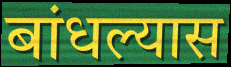
बांधल्यास